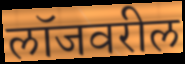
लॉजवरील